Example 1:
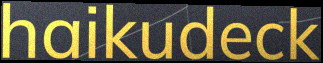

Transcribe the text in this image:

haikudeck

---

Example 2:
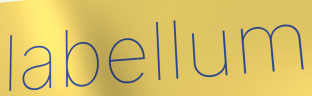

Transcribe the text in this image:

labellum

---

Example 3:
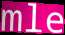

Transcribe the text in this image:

mle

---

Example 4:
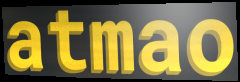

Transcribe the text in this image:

atmao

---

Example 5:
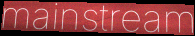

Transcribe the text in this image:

mainstream